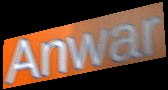
Anwar